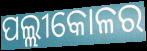
ପଲ୍ଲୀକୋଳର